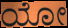
ಯೋ